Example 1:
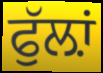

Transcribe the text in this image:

ਫੁੱਲ਼ਾਂ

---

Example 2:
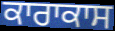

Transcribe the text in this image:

ਕਾਰਾਕਾਸ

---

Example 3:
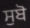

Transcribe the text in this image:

ਸੁਬੋ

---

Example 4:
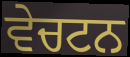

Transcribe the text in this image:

ਵੇਚਟਨ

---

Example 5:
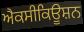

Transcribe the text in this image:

ਐਕਸੀਕਿਊਸ਼ਨ